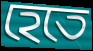
হেতে